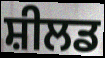
ਸ਼ੀਲਡ